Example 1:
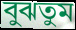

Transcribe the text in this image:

বুঝতুম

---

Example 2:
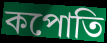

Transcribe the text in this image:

কপোতি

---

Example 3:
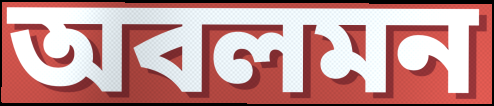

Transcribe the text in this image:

অবলমন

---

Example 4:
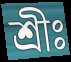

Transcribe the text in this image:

শ্রীঃ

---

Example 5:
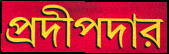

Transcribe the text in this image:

প্রদীপদার